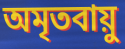
অমৃতবায়ু